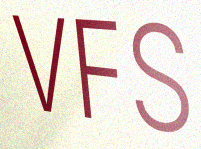
VFS